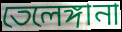
তেলেঙ্গানা